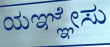
ಯಞ್ಞೇಸು